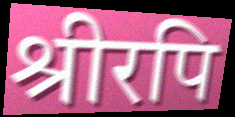
श्रीरपि